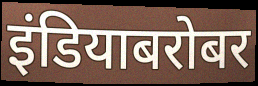
इंडियाबरोबर